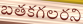
బతకగలరని